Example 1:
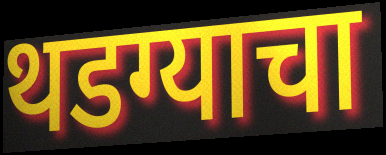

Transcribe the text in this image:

थडग्याचा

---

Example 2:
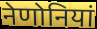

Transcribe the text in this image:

नेणोनियां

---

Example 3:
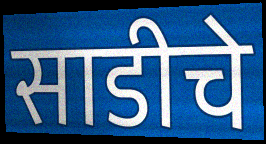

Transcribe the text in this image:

साडीचे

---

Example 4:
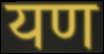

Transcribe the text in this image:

यण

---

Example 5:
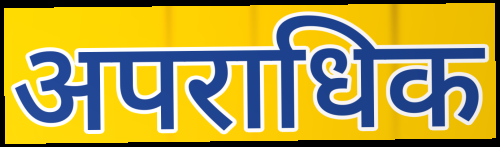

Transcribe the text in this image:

अपराधिक